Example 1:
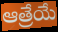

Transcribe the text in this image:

ఆత్రేయే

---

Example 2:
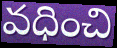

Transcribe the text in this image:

వధించి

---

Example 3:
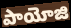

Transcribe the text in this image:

పాయోజి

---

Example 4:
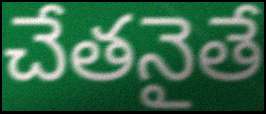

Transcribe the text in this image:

చేతనైతే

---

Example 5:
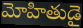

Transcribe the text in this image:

మోహితుడై